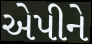
એપીને